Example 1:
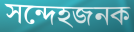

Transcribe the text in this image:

সন্দেহজনক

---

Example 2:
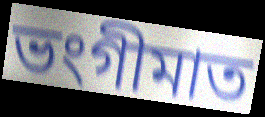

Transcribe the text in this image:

ভংগীমাত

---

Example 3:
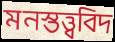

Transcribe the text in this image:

মনস্তত্ত্ববিদ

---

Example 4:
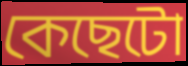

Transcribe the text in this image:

কেছেটো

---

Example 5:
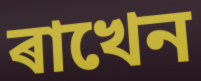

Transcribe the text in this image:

ৰাখেন